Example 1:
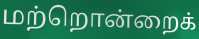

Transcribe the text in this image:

மற்றொன்றைக்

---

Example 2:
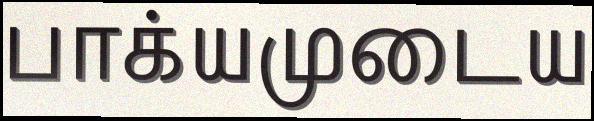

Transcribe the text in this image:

பாக்யமுடைய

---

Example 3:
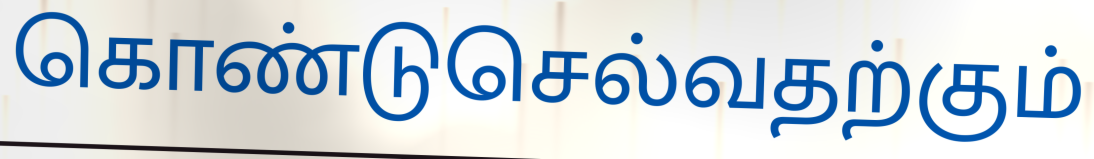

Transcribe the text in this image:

கொண்டுசெல்வதற்கும்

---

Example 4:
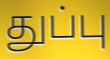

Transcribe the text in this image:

துப்பு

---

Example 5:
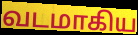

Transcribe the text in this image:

வடமாகிய